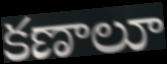
కణాలూ